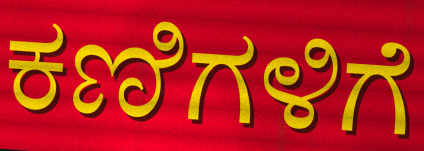
ಕಣಿಗಳಿಗೆ